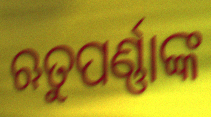
ଋତୁପର୍ଣ୍ଣାଙ୍କ